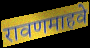
रावणमाहवे